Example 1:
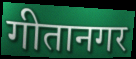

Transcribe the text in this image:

गीतानगर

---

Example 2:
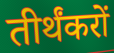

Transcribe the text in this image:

तीर्थंकरों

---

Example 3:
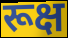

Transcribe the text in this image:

रूक्ष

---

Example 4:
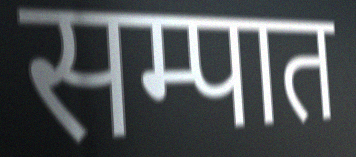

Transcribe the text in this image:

सम्पात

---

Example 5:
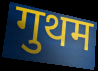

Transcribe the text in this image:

गुथम